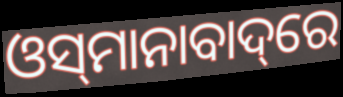
ଓସ୍‌ମାନାବାଦ୍‌ରେ